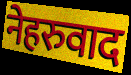
नेहरुवाद